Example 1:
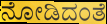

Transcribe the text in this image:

ನೋಡಿದಂತೆ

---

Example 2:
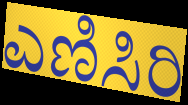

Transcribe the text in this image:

ಎಣಿಸಿರಿ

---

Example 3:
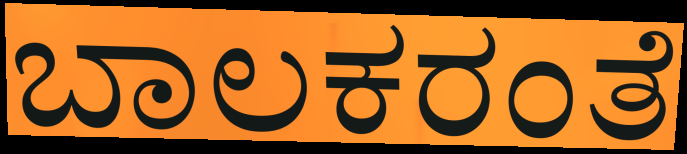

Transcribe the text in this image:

ಬಾಲಕರಂತೆ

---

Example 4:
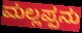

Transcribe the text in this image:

ಮಲ್ಲಪ್ಪನು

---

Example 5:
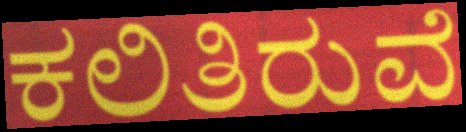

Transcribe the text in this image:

ಕಲಿತಿರುವೆ